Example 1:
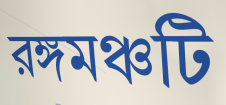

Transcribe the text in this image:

রঙ্গমঞ্চটি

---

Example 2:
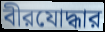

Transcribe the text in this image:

বীরযোদ্ধার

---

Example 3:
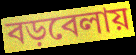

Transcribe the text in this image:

বড়বেলায়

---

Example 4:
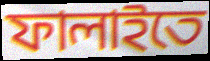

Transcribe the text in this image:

ফালাইতে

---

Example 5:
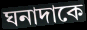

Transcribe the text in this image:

ঘনাদাকে